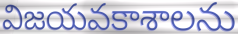
విజయవకాశాలను